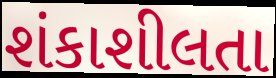
શંકાશીલતા